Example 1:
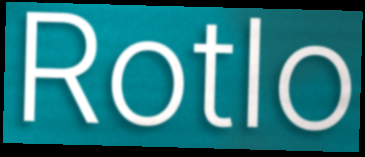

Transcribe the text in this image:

Rotlo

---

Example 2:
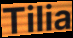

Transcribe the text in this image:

Tilia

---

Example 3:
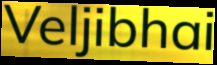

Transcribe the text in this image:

Veljibhai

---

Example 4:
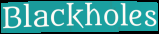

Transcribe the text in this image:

Blackholes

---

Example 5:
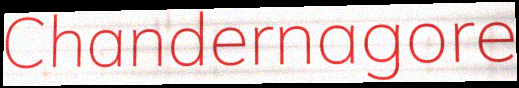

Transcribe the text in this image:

Chandernagore